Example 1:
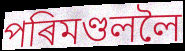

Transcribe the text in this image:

পৰিমণ্ডললৈ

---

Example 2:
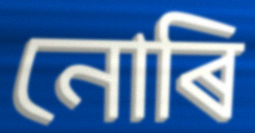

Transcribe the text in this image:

নোৰি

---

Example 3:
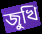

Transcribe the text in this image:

জুখি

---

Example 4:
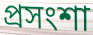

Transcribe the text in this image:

প্ৰসংশা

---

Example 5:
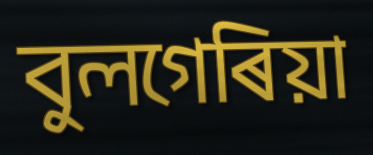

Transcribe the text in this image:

বুলগেৰিয়া